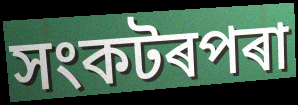
সংকটৰপৰা